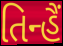
તિન્હૈં